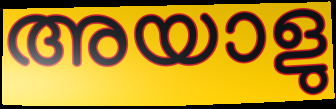
അയാളു